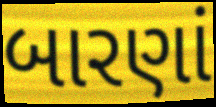
બારણાં